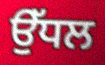
ਉੱਧਲ